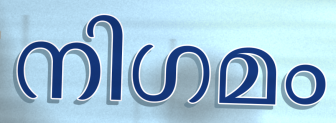
നിഗമം